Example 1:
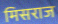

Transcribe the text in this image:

मिसराज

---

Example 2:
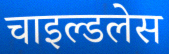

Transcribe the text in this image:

चाइल्डलेस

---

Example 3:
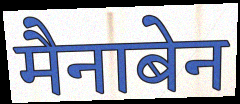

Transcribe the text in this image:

मैनाबेन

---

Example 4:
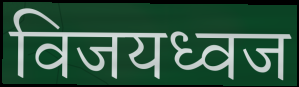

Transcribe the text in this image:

विजयध्वज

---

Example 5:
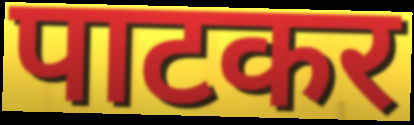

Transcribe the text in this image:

पाटकर